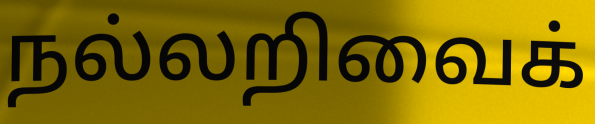
நல்லறிவைக்